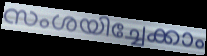
സംശയിച്ചേക്കാം